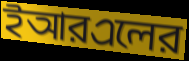
ইআরএলের